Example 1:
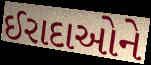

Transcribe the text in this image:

ઈરાદાઓને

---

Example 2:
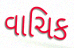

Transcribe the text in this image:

વાચિક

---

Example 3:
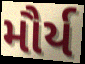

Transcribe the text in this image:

મૌર્ય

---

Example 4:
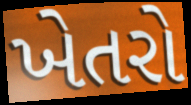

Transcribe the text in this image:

ખેતરો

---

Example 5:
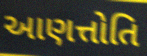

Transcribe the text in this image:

આણત્તોતિ